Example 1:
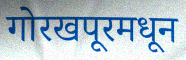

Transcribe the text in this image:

गोरखपूरमधून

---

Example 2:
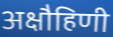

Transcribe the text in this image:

अक्षौहिणी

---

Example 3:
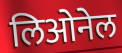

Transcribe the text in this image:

लिओनेल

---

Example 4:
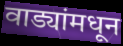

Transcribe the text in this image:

वाड्यांमधून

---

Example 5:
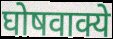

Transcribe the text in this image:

घोषवाक्ये